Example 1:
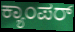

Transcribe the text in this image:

ಕ್ಯಾಂಪರ್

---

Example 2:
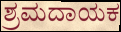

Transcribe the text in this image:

ಶ್ರಮದಾಯಕ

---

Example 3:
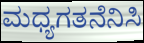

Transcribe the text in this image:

ಮಧ್ಯಗತನೆನಿಸಿ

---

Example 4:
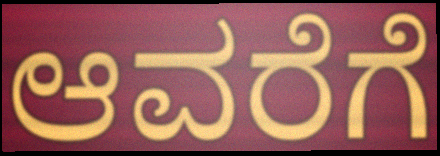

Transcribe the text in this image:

ಆವರೆಗೆ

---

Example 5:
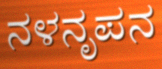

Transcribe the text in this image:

ನಳನೃಪನ